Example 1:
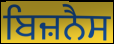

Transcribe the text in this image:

ਬਿਜ਼ਨੈਸ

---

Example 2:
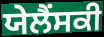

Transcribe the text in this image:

ਯੇਲੈਂਸਕੀ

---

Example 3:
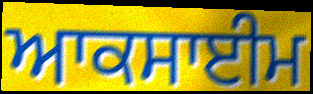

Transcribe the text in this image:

ਆਕਸਾਈਮ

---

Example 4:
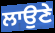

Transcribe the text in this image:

ਲਾਉਣੇ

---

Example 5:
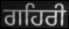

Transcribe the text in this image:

ਗਹਿਰੀ